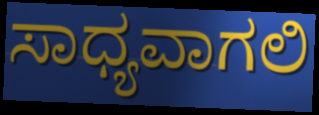
ಸಾಧ್ಯವಾಗಲಿ